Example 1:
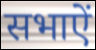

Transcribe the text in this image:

सभाऐं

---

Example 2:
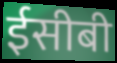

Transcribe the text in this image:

ईसीबी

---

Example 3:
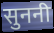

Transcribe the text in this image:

सुननी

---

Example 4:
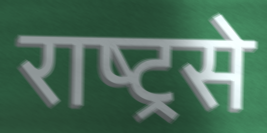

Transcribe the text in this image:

राष्ट्रसे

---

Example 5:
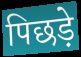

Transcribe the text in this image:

पिछड़े